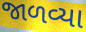
જાળવ્યા